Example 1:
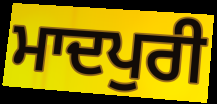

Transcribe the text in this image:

ਮਾਦਪੁਰੀ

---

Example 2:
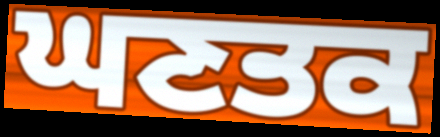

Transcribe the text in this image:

ਘਣਤਕ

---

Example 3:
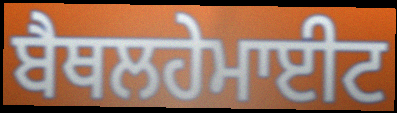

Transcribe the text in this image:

ਬੈਥਲਹੇਮਾਈਟ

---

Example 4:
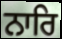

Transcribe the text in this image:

ਨਾਰਿ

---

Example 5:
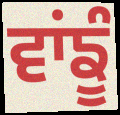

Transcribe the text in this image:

ਵਾਂਙੂੰ